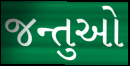
જન્તુઓ